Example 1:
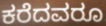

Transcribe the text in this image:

ಕರೆದವರೂ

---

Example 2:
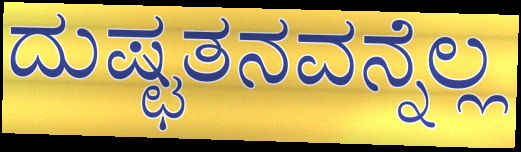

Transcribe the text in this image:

ದುಷ್ಟತನವನ್ನೆಲ್ಲ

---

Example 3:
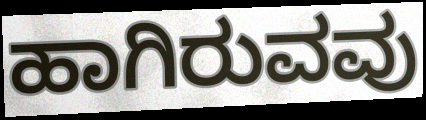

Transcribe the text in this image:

ಹಾಗಿರುವವು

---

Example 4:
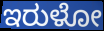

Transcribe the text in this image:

ಇರುಳೋ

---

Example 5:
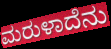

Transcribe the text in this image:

ಮರುಳಾದೆನು